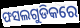
ଫସଲଗୁଡିକରେ